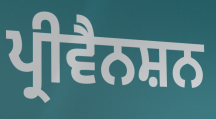
ਪ੍ਰੀਵੈਨਸ਼ਨ